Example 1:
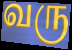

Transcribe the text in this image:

வரு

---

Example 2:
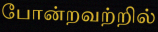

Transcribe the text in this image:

போன்றவற்றில்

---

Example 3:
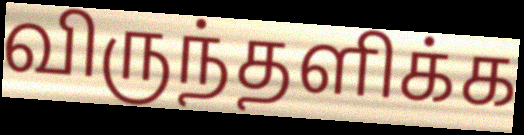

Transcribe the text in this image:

விருந்தளிக்க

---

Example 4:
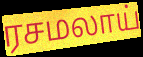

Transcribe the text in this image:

ரசமலாய்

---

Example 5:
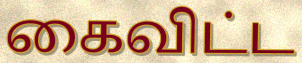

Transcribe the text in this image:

கைவிட்ட